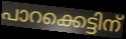
പാറക്കെട്ടിന്